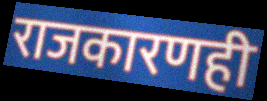
राजकारणही